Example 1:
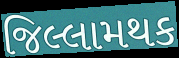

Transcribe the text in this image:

જિલ્લામથક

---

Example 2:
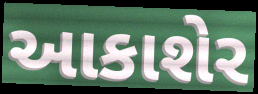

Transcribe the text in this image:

આકાશેર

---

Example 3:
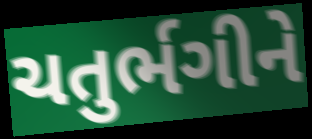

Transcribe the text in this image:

ચતુર્ભગીને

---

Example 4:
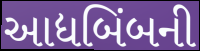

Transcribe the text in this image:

આદ્યબિંબની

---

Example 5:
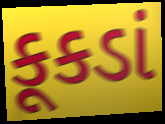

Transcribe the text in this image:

કૂકડાં